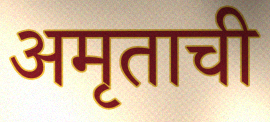
अमृताची